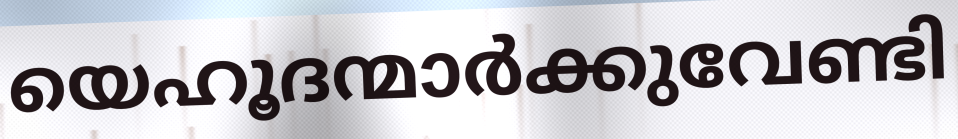
യെഹൂദന്മാർക്കുവേണ്ടി